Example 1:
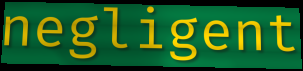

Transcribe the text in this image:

negligent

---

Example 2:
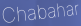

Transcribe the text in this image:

Chabahar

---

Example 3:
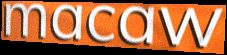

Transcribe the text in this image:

macaw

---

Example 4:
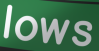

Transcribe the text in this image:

lows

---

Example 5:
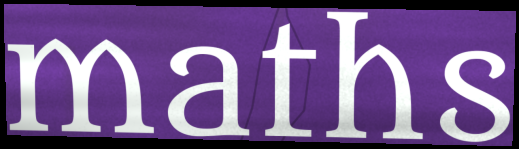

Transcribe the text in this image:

maths